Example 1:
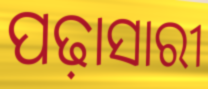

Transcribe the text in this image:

ପଢ଼ାସାରୀ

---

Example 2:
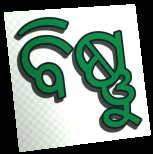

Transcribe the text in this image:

ବିଷ୍ଣୁ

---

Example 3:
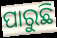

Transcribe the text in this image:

ପାରୁଛି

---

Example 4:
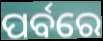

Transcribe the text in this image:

ପର୍ବରେ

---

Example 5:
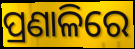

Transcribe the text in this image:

ପ୍ରଣାଳିରେ